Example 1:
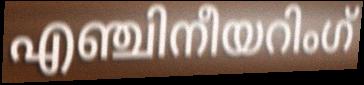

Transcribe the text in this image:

എഞ്ചിനീയറിംഗ്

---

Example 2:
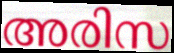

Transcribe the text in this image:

അരിസ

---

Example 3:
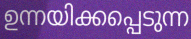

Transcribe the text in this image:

ഉന്നയിക്കപ്പെടുന്ന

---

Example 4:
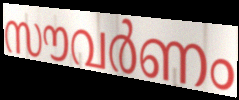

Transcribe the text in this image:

സൗവർണം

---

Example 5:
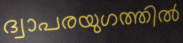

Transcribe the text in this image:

ദ്വാപരയുഗത്തിൽ